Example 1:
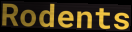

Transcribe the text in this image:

Rodents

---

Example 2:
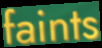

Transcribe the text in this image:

faints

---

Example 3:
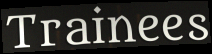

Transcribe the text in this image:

Trainees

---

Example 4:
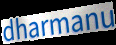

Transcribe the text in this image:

dharmanu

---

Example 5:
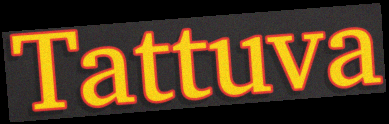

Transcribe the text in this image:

Tattuva